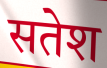
सतेश